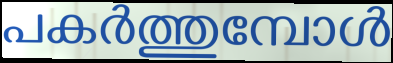
പകർത്തുമ്പോൾ